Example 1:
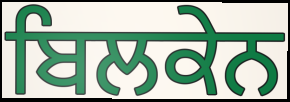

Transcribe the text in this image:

ਬਿਲਕੇਨ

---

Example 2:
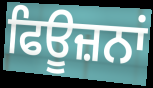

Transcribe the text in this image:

ਫਿਊਜ਼ਨਾਂ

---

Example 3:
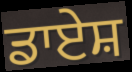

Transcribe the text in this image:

ਡਾਏਸ਼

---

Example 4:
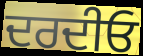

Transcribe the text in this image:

ਦਰਦੀਓ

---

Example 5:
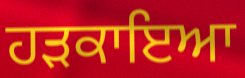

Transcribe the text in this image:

ਹੜਕਾਇਆ